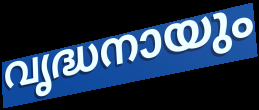
വൃദ്ധനായും